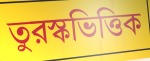
তুরস্কভিত্তিক